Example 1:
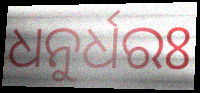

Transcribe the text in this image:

ଧନୁର୍ଧରଃ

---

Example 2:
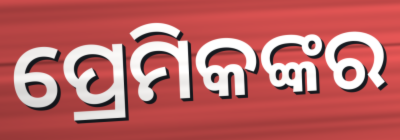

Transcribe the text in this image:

ପ୍ରେମିକଙ୍କର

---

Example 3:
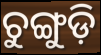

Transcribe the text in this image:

ଚୁଙ୍ଗୁଡ଼ି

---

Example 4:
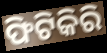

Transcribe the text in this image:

ଫିଟିକିରି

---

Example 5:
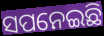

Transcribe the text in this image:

ସପନେଇଛି